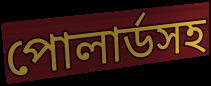
পোলার্ডসহ